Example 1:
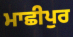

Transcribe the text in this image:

ਮਾਛੀਪੁਰ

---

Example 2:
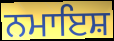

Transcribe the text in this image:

ਨਮਾਇਸ਼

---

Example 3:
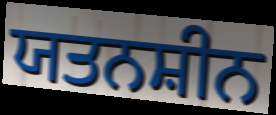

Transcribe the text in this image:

ਯਤਨਸ਼ੀਨ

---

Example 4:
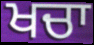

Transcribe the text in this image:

ਖਚਾ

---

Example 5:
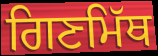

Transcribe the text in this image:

ਗਿਣਮਿੱਥ